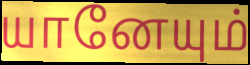
யானேயும்